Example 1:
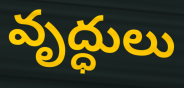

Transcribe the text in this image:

వృద్ధులు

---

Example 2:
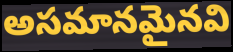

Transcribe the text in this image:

అసమానమైనవి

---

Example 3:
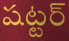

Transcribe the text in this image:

షట్టర్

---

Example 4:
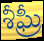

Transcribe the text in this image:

శీఘ్రీ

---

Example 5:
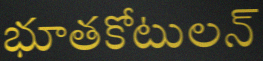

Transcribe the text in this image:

భూతకోటులన్